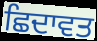
ਛਿਦਾਵਤ